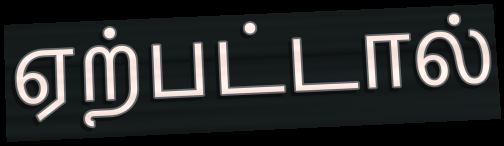
ஏற்பட்டால்